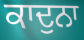
ਕਾਦੁਨਾ